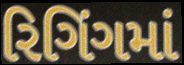
રિગિંગમાં